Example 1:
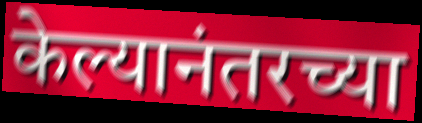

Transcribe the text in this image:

केल्यानंतरच्या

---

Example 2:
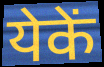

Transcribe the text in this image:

येकें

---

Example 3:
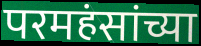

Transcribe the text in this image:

परमहंसांच्या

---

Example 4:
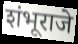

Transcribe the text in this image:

शंभूराजे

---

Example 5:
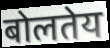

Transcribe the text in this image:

बोलतेय